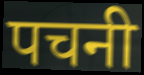
पचनी